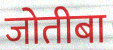
जोतीबा